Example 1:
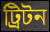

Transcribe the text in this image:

ট্রিটন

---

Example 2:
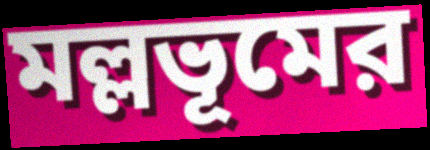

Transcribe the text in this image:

মল্লভূমের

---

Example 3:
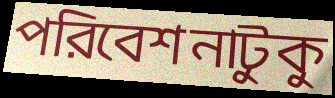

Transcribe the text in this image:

পরিবেশনাটুকু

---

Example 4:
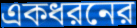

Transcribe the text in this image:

একধরনের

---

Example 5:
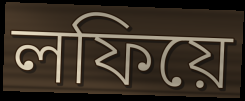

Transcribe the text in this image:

লফিয়ে